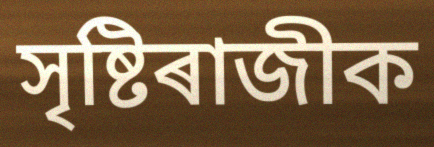
সৃষ্টিৰাজীক